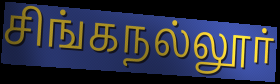
சிங்கநல்லூர்